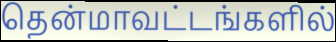
தென்மாவட்டங்களில்